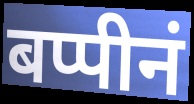
बप्पीनं